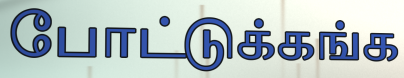
போட்டுக்கங்க